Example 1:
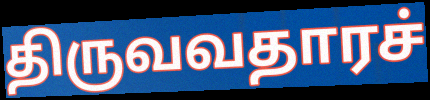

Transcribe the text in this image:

திருவவதாரச்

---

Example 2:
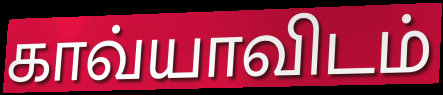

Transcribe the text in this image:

காவ்யாவிடம்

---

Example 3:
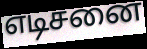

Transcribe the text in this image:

எடிசனை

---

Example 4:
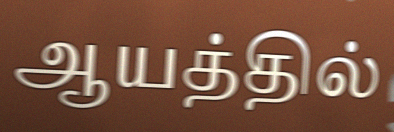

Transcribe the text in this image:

ஆயத்தில்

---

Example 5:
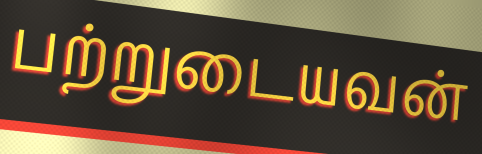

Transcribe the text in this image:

பற்றுடையவன்